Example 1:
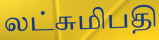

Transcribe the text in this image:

லட்சுமிபதி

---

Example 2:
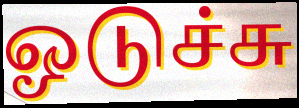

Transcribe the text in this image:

ஓடுச்சு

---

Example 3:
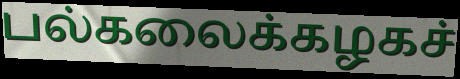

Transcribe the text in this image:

பல்கலைக்கழகச்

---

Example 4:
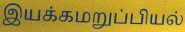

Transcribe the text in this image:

இயக்கமறுப்பியல்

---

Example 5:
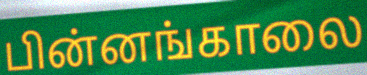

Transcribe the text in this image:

பின்னங்காலை